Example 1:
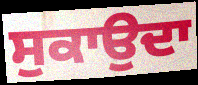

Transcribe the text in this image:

ਸੁਕਾਉਦਾ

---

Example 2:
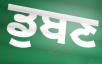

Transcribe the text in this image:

ਡੁਬਣ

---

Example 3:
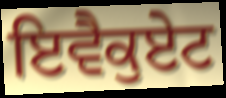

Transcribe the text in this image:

ਇਵੈਕੁਏਟ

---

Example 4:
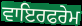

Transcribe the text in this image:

ਵਾਇਰਫਰੇਮ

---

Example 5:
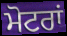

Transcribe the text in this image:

ਮੋਟਰਾਂ